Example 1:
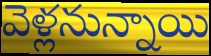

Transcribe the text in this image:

వెళ్లనున్నాయి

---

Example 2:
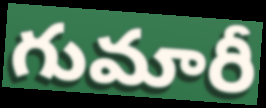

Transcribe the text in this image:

గుమారీ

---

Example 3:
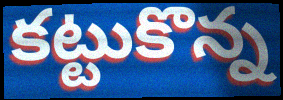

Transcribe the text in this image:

కట్టుకొన్న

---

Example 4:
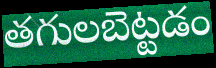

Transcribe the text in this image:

తగులబెట్టడం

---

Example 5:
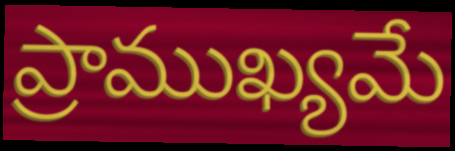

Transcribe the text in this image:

ప్రాముఖ్యమే